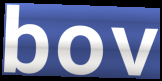
bov